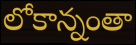
లోకాన్నంతా